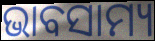
ଭାବସାମ୍ୟ